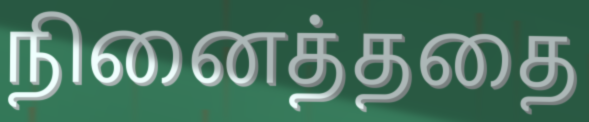
நினைத்ததை